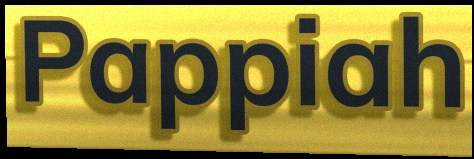
Pappiah